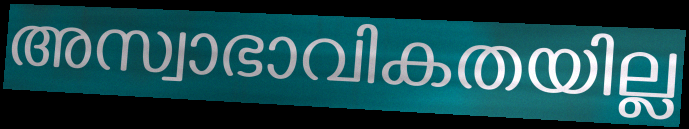
അസ്വാഭാവികതയില്ല